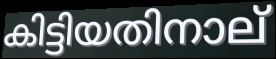
കിട്ടിയതിനാല്